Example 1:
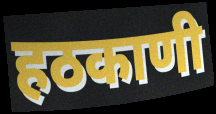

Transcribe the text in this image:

हठकाणी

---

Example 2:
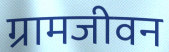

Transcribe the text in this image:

ग्रामजीवन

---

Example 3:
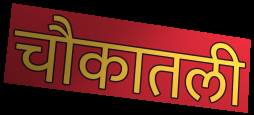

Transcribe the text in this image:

चौकातली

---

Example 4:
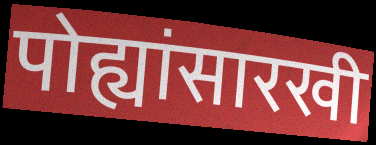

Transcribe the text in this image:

पोह्यांसारखी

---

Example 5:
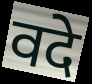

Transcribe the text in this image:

वदे